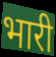
भारी